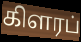
கிளரப்